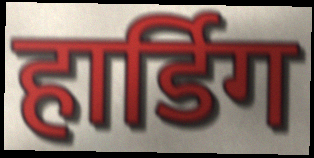
हार्डिग